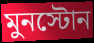
মুনস্টোন